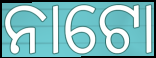
ନାଟୋ